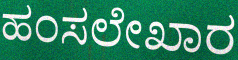
ಹಂಸಲೇಖಾರ